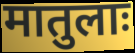
मातुलाः